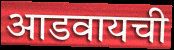
आडवायची